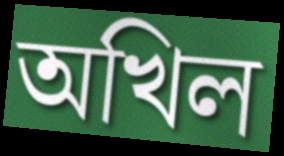
অখিল